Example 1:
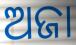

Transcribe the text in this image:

ଅଜା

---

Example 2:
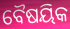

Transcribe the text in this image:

ବୈଷୟିକ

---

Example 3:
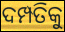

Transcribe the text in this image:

ଦମ୍ପତିକୁ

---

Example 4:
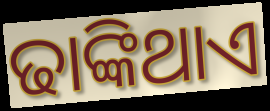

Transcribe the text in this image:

ଢାଙ୍କିଥାଏ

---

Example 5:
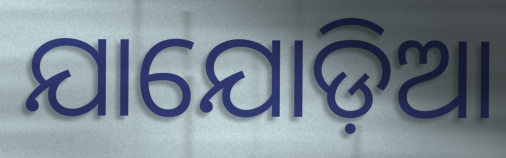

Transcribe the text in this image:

ଯାଯୋଡ଼ିଆ